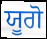
ਯੂਗੋ